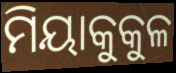
ମିୟାକୁକୁଳ